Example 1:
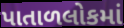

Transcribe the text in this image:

પાતાળલોકમાં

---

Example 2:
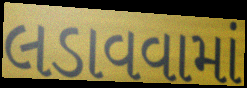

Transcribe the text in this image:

લડાવવામાં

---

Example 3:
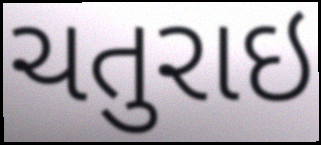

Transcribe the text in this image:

ચતુરાઇ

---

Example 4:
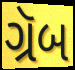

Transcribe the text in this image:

ગ્રૅબ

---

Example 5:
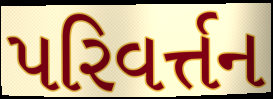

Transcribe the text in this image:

પરિવર્ત્તન